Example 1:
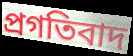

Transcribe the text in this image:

প্রগতিবাদ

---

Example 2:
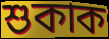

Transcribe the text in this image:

শুকাক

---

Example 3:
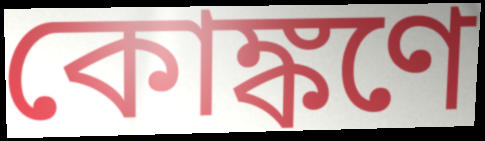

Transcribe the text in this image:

কোঙ্কণে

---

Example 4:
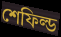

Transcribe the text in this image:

শেফিল্ড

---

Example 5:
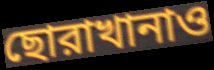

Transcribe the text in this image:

ছোরাখানাও